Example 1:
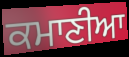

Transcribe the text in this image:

ਕਮਾਣੀਆ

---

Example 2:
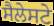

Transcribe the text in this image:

ਸੈਲੇਸਟੇ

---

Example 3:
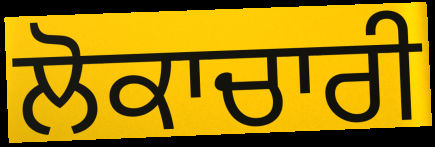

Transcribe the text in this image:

ਲੋਕਾਚਾਰੀ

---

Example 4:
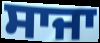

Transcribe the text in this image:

ਸਾਜਾ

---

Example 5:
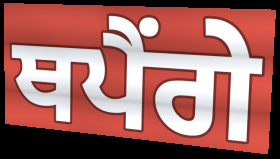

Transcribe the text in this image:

ਥਪੈਂਗੇ